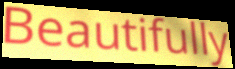
Beautifully